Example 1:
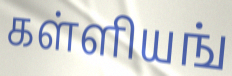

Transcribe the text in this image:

கள்ளியங்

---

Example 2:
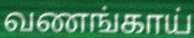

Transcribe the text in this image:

வணங்காய்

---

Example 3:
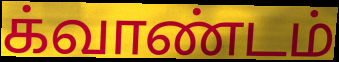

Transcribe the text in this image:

க்வாண்டம்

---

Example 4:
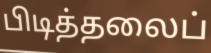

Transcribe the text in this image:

பிடித்தலைப்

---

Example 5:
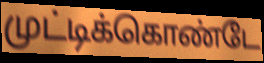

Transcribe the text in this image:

முட்டிக்கொண்டே